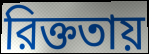
রিক্ততায়